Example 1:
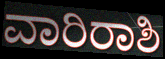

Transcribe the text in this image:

ವಾರಿರಾಶಿ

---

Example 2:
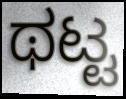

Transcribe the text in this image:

ಥಟ್ಟ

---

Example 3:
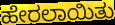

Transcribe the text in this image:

ಹೇರಲಾಯಿತು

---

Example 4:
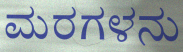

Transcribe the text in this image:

ಮರಗಳನು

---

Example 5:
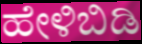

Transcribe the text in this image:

ಹೇಳಿಬಿಡಿ